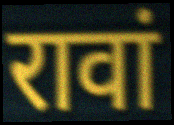
रावां